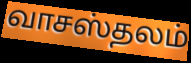
வாசஸ்தலம்